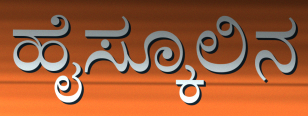
ಹೈಸ್ಕೂಲಿನ